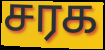
சரக